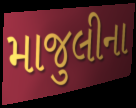
માજુલીના